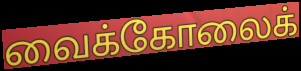
வைக்கோலைக்